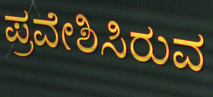
ಪ್ರವೇಶಿಸಿರುವ